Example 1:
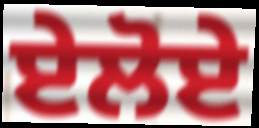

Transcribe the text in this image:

ਏਲੋਏ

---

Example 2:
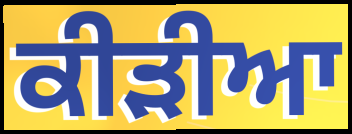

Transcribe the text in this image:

ਕੀੜੀਆ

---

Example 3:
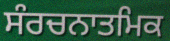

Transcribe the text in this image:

ਸੰਰਚਨਾਤਮਿਕ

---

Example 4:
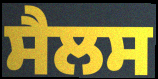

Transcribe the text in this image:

ਸੈਲਸ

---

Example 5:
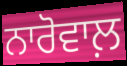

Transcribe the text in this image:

ਨਾਰੋਵਾਲ਼